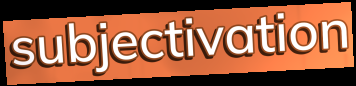
subjectivation